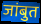
जांबुत